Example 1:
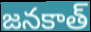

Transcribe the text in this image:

జనకాత్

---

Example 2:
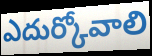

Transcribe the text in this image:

ఎదుర్కోవాలి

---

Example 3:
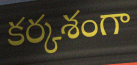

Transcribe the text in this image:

కర్కశంగా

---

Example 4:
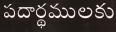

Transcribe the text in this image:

పదార్థములకు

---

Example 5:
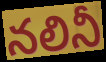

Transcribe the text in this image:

నలినీ